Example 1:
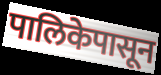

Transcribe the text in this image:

पालिकेपासून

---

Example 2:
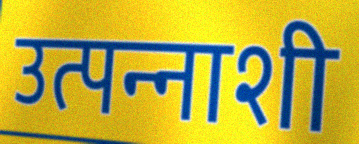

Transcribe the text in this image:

उत्पन्नाशी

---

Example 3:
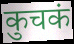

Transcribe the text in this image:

कुचकं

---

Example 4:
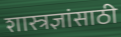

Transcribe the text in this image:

शास्त्रज्ञांसाठी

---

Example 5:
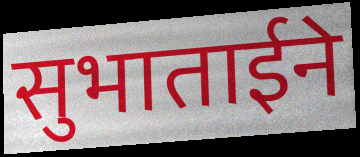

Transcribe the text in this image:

सुभाताईने